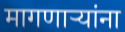
मागणार्‍यांना